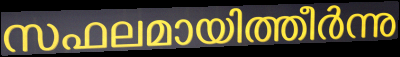
സഫലമായിത്തീർന്നു